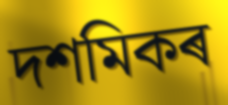
দশমিকৰ